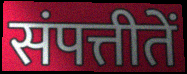
संपत्तीतें